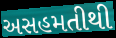
અસહમતીથી